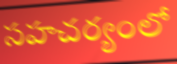
సహచర్యంలో